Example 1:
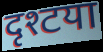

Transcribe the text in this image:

दृश्टया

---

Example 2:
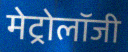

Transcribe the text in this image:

मेट्रोलॉजी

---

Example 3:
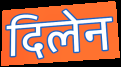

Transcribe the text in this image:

दिलेन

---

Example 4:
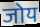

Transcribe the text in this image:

जोय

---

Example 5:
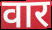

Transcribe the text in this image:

वार